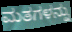
ಮತಗಳನ್ನು